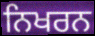
ਨਿਖਰਨ